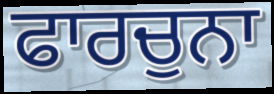
ਫਾਰਚੁਨਾ